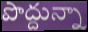
పొద్దున్నా